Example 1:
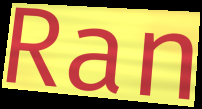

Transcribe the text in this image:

Ran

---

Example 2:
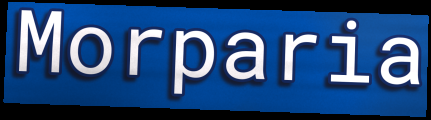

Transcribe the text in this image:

Morparia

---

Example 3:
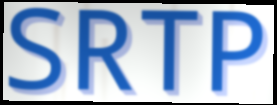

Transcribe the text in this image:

SRTP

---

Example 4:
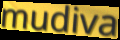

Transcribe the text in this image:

mudiva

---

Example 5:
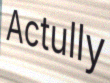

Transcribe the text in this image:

Actully